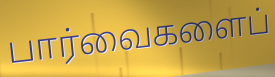
பார்வைகளைப்